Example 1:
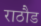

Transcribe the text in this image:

राठौड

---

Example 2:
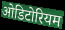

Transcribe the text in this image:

ओडिटोरियम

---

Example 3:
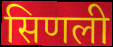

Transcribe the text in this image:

सिणली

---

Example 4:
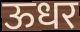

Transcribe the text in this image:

ऊधर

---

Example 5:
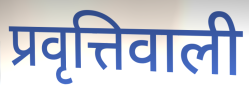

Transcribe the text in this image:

प्रवृत्तिवाली